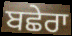
ਬਛੇਰਾ